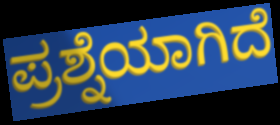
ಪ್ರಶ್ನೆಯಾಗಿದೆ